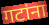
गटांना